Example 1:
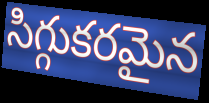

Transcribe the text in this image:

సిగ్గుకరమైన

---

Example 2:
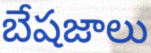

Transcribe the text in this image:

బేషజాలు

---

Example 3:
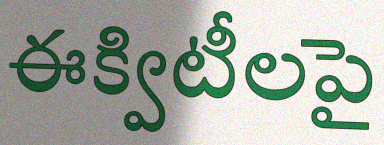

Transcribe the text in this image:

ఈక్విటీలపై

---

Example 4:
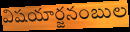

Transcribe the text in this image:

విషయార్జనంబుల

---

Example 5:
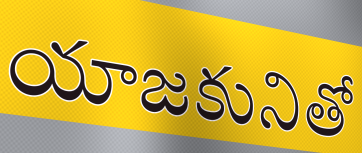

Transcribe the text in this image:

యాజకునితో